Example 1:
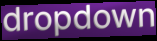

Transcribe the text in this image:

dropdown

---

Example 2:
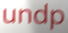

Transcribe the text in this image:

undp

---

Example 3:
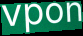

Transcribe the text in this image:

vpon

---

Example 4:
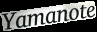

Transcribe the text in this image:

Yamanote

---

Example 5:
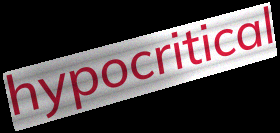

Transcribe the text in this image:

hypocritical